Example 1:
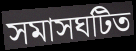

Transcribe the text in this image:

সমাসঘটিত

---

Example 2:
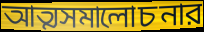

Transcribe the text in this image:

আত্মসমালোচনার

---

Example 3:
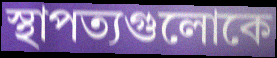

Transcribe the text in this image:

স্থাপত্যগুলোকে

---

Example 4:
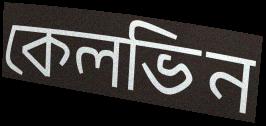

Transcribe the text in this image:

কেলভিন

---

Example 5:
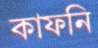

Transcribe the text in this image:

কাফনি